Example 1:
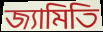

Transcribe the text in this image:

জ্যামিতি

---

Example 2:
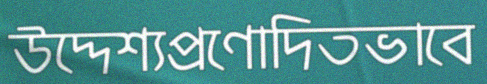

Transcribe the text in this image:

উদ্দেশ্যপ্রণোদিতভাবে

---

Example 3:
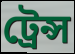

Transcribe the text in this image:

ট্রেন্স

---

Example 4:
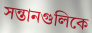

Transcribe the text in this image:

সন্তানগুলিকে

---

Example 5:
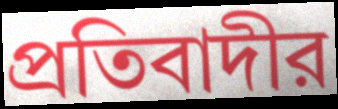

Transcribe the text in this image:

প্রতিবাদীর